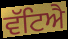
ਵੱਟਿਐ